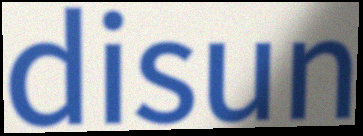
disun